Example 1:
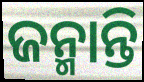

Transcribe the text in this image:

ଜନ୍ମାନ୍ତି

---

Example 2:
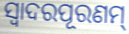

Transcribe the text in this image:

ସ୍ଵାଦରପୂରଣମ୍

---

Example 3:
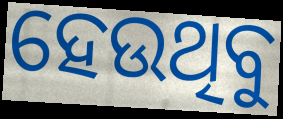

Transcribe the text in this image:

ହେଉଥିବୁ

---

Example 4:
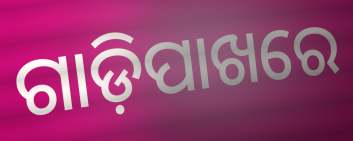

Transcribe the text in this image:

ଗାଡ଼ିପାଖରେ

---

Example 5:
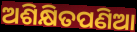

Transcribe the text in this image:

ଅଶିକ୍ଷିତପଣିଆ